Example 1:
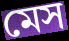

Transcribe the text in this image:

মেস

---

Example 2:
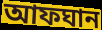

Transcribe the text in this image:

আফঘান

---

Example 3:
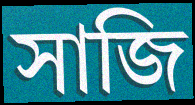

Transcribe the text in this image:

সাজি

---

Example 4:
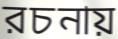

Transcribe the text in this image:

রচনায়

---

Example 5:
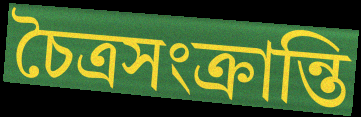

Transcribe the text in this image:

চৈত্রসংক্রান্তি